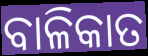
ବାଳିକାତ